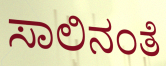
ಸಾಲಿನಂತೆ